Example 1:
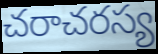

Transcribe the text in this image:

చరాచరస్య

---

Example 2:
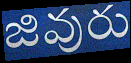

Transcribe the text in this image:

జివురు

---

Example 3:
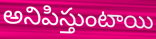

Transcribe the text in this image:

అనిపిస్తుంటాయి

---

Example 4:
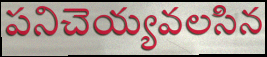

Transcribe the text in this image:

పనిచెయ్యవలసిన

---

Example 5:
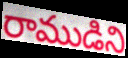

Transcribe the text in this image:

రాముడిని